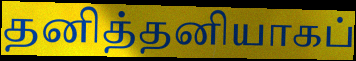
தனித்தனியாகப்